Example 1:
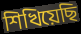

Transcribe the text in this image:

শিখিয়েছি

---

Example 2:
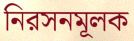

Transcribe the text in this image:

নিরসনমূলক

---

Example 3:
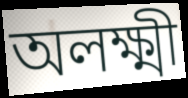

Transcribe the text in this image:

অলক্ষ্মী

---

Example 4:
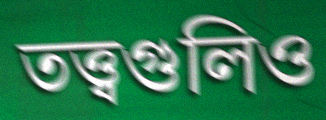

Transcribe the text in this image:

তত্ত্বগুলিও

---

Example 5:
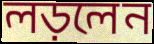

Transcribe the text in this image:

লড়লেন